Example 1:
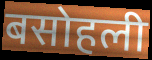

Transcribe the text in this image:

बसोहली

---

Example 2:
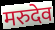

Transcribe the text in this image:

मरुदेव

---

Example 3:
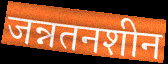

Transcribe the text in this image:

जन्नतनशीन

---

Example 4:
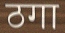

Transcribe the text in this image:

ठगा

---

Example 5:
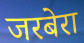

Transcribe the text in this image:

जरबेरा